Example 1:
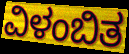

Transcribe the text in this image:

ವಿಳಂಬಿತ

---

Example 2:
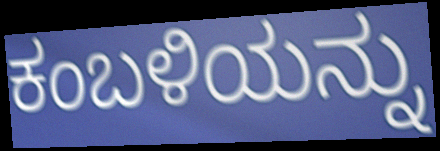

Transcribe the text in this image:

ಕಂಬಳಿಯನ್ನು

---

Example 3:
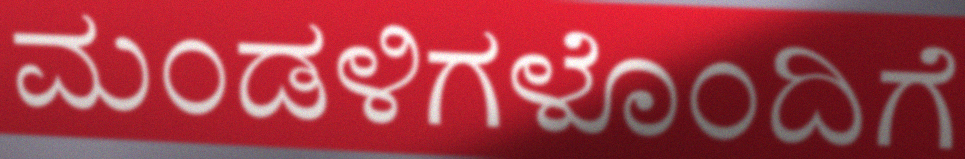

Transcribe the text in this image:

ಮಂಡಳಿಗಳೊಂದಿಗೆ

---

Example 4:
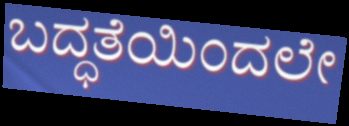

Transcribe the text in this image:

ಬದ್ಧತೆಯಿಂದಲೇ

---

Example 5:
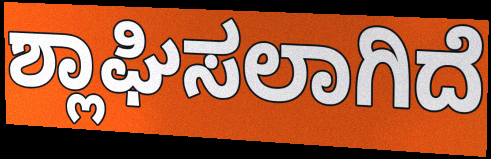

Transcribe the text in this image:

ಶ್ಲಾಘಿಸಲಾಗಿದೆ